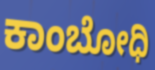
ಕಾಂಬೋಧಿ